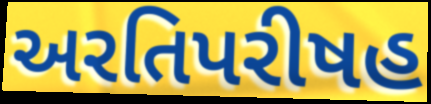
અરતિપરીષહ